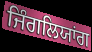
ਜਿੰਗਲਿਯਾਂਗ